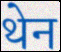
थेन